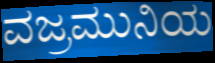
ವಜ್ರಮುನಿಯ